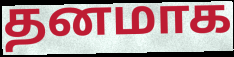
தனமாக